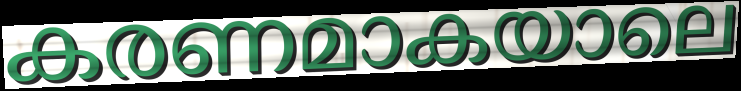
കരണമാകയാലെ